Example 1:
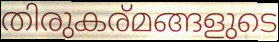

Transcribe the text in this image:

തിരുകര്മങ്ങളുടെ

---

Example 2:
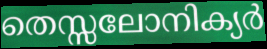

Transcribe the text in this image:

തെസ്സലോനിക്യർ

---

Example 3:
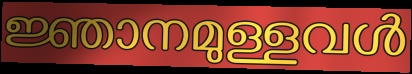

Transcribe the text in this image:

ജ്ഞാനമുള്ളവൾ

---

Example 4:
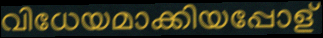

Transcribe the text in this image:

വിധേയമാക്കിയപ്പോള്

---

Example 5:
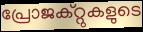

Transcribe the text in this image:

പ്രോജക്റ്റുകളുടെ